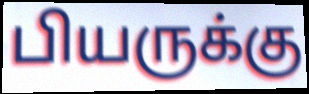
பியருக்கு